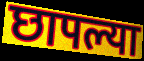
छापल्या